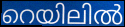
റെയിലിൽ